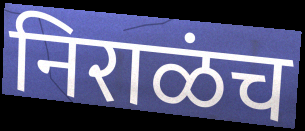
निराळंच